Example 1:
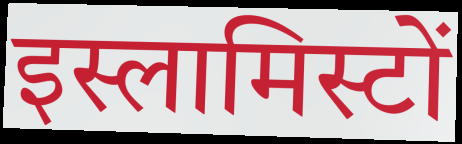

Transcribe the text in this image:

इस्लामिस्टों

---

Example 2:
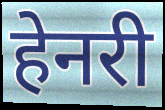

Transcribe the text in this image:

हेनरी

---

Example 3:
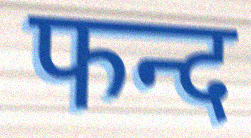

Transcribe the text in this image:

फन्द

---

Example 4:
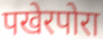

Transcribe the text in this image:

पखेरपोरा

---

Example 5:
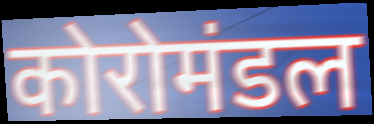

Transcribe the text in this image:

कोरोमंडल